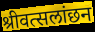
श्रीवत्सलांछन